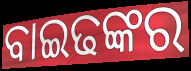
ବାଇଢଙ୍କର